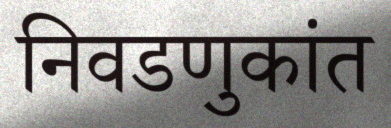
निवडणुकांत